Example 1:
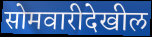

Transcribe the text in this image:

सोमवारीदेखील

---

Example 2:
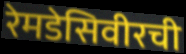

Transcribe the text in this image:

रेमडेसिवीरची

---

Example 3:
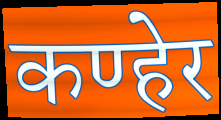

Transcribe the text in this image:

कण्हेर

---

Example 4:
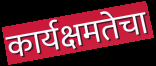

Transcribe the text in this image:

कार्यक्षमतेचा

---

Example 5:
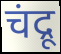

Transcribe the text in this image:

चंद्रू